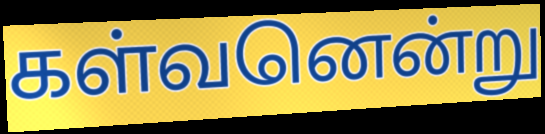
கள்வனென்று